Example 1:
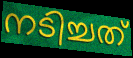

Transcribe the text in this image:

നടിച്ചത്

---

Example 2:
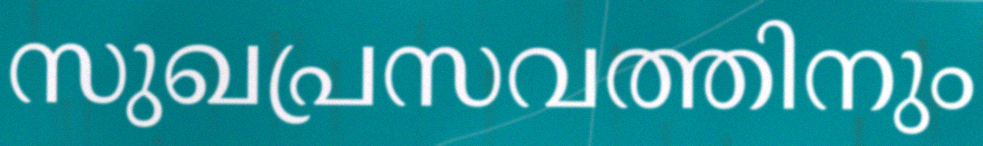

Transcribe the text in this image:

സുഖപ്രസവത്തിനും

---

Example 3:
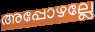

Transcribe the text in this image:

അപ്പോഴല്ലേ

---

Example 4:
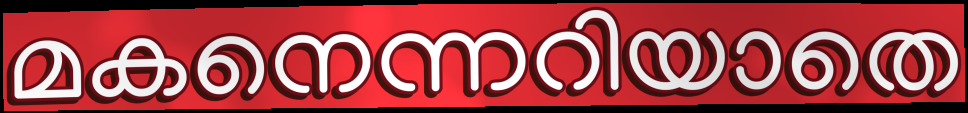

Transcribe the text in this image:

മകനെന്നറിയാതെ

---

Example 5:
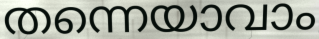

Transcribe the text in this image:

തന്നെയാവാം